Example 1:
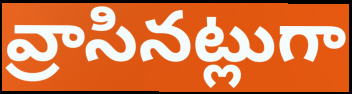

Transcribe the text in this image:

వ్రాసినట్లుగా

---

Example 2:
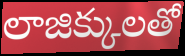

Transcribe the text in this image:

లాజిక్కులతో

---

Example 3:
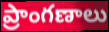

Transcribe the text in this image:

ప్రాంగణాలు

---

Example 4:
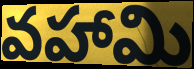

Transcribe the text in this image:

వహామి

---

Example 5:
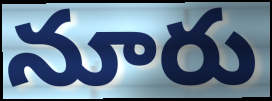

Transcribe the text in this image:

నూరు